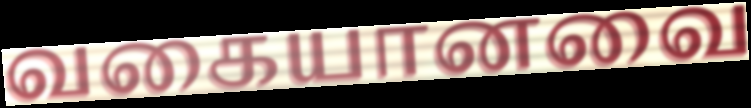
வகையானவை